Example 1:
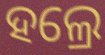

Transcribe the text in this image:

ହଲ୍ରେ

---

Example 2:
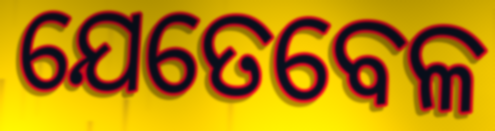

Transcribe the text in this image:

ଯେତେବେଳ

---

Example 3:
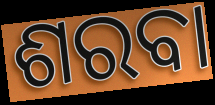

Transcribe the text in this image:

ଶରବା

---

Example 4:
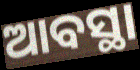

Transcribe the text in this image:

ଆବସ୍ଥା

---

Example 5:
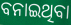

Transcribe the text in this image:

ବନାଇଥିବା